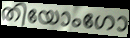
തിയോംഗോ